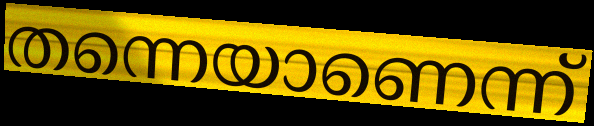
തന്നെയാണെന്ന്